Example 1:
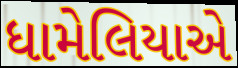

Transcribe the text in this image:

ધામેલિયાએ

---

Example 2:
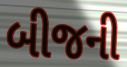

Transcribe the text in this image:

બીજની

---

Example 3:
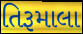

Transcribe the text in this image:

તિરૂમાલા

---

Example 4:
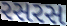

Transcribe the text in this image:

રસરસ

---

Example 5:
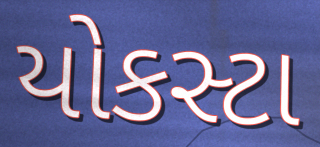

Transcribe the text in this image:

યોકસ્ટા